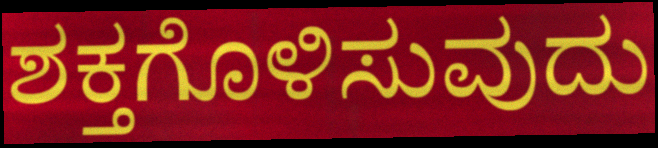
ಶಕ್ತಗೊಳಿಸುವುದು